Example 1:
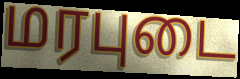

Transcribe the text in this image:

மரபுடை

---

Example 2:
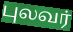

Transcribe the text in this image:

புலவர்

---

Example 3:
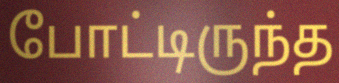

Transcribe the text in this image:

போட்டிருந்த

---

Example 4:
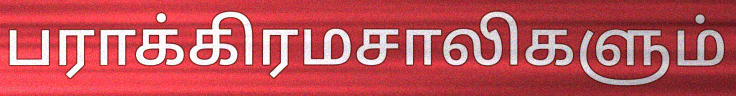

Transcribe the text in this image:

பராக்கிரமசாலிகளும்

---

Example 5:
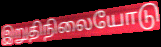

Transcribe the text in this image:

இறுதிநிலையோடு